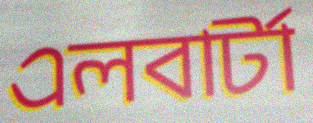
এলবার্টা